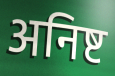
अनिष्ट